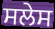
ਸਲੇਸ